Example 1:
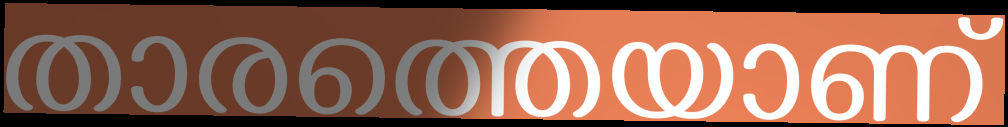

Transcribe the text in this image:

താരത്തെയാണ്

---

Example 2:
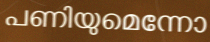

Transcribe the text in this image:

പണിയുമെന്നോ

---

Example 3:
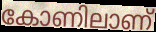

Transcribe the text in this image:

കോണിലാണ്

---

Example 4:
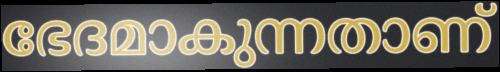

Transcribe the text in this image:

ഭേദമാകുന്നതാണ്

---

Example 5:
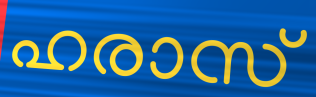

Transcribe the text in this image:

ഹരാസ്